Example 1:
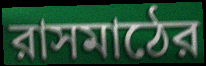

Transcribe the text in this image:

রাসমাঠের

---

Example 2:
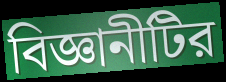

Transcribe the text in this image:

বিজ্ঞানীটির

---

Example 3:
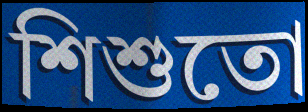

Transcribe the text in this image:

শিশুতো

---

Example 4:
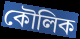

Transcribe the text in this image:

কৌলিক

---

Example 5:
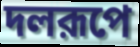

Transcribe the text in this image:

দলরূপে